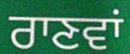
ਰਾਣਵਾਂ